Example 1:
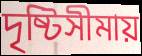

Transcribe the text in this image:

দৃষ্টিসীমায়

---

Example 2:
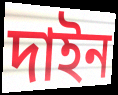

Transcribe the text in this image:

দাইন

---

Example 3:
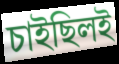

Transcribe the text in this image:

চাইছিলই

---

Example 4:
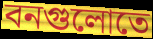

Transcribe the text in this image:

বনগুলোতে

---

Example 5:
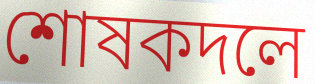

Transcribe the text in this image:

শোষকদলে